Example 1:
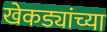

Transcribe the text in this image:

खेकड्यांच्या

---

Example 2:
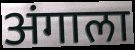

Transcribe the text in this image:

अंगाला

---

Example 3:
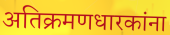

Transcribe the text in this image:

अतिक्रमणधारकांना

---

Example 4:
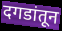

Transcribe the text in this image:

दगडांतून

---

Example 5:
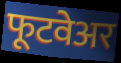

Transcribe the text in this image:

फूटवेअर